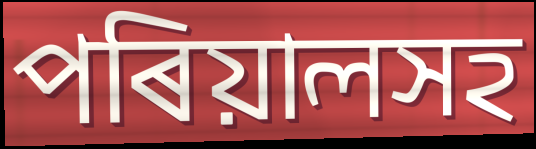
পৰিয়ালসহ